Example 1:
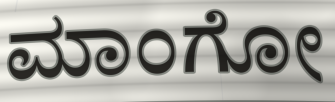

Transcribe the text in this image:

ಮಾಂಗೋ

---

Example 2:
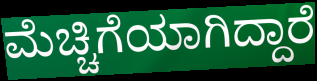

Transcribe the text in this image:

ಮೆಚ್ಚಿಗೆಯಾಗಿದ್ದಾರೆ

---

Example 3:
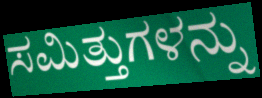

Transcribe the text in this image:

ಸಮಿತ್ತುಗಳನ್ನು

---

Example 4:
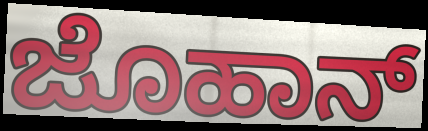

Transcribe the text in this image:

ಜೊಹಾನ್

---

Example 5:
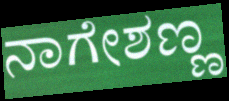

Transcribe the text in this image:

ನಾಗೇಶಣ್ಣ